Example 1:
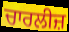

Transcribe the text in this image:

ਚਾਰਲੀਜ਼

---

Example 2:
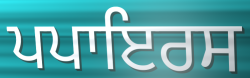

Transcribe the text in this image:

ਪਪਾਇਰਸ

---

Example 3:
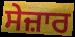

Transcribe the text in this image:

ਸੇਜ਼ਾਰ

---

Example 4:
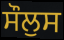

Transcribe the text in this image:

ਸੌਲੁਸ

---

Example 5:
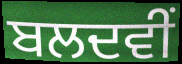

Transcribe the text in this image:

ਬਲਦਵੀਂ